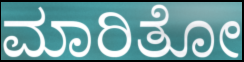
ಮಾರಿತೋ